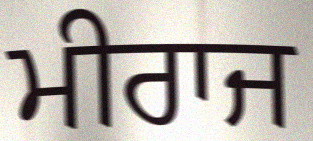
ਮੀਰਾਜ